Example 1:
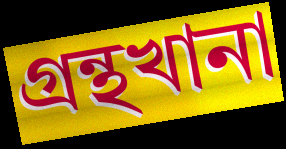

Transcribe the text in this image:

গ্রন্থখানা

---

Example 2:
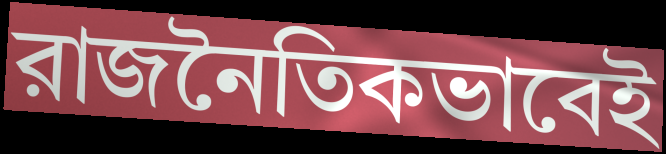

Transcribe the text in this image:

রাজনৈতিকভাবেই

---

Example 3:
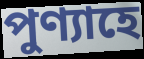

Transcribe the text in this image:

পুণ্যাহে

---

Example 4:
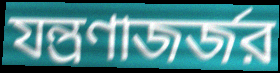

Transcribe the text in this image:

যন্ত্রণাজর্জর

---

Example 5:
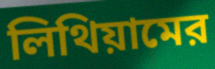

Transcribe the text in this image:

লিথিয়ামের